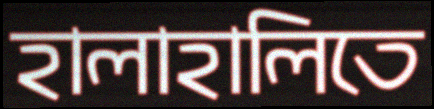
হালাহালিতে